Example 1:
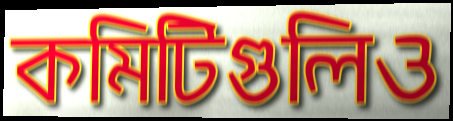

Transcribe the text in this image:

কমিটিগুলিও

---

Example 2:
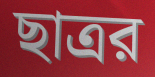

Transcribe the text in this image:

ছাত্রর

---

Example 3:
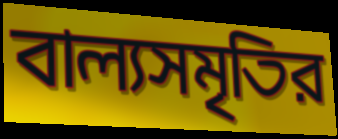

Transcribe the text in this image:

বাল্যসমৃতির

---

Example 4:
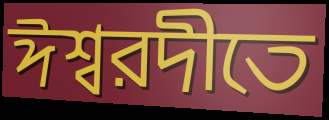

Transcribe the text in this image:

ঈশ্বরদীতে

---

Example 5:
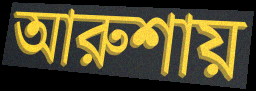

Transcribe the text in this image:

আরুশায়